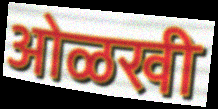
ओळखी